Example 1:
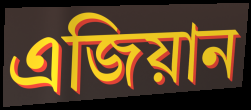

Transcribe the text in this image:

এজিয়ান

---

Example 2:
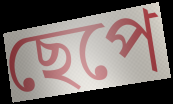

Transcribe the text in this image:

ছেপে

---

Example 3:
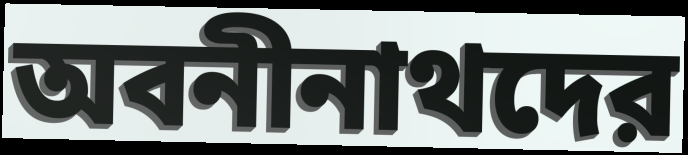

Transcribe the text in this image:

অবনীনাথদের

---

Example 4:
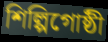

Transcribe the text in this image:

শিল্পিগোষ্ঠী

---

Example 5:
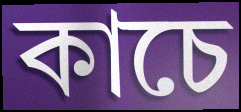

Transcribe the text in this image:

কাচে